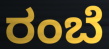
ರಂಬೆ